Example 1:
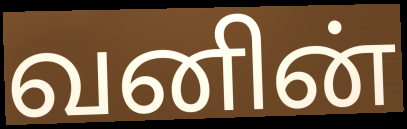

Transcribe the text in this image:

வனின்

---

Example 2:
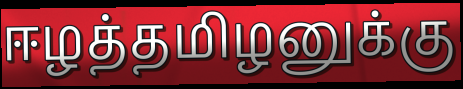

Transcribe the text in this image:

ஈழத்தமிழனுக்கு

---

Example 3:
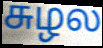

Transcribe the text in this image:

சுழல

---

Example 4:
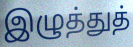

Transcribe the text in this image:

இழுத்துத்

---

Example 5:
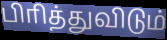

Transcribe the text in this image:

பிரித்துவிடும்